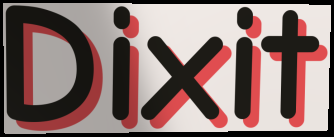
Dixit